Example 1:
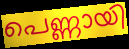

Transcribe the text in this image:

പെണ്ണായി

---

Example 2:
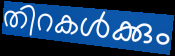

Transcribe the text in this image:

തിറകൾക്കും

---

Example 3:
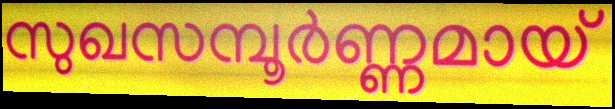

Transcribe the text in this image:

സുഖസമ്പൂർണ്ണമായ്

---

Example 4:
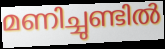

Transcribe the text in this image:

മണിച്ചുണ്ടിൽ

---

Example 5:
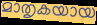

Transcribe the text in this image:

മാതൃകയായ